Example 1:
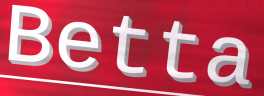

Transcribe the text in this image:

Betta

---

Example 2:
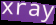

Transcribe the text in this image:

xray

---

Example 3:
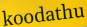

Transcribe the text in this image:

koodathu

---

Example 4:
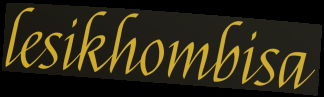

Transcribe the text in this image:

lesikhombisa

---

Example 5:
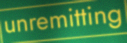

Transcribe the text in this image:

unremitting